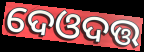
ଦେଓଦତ୍ତ